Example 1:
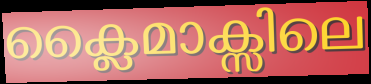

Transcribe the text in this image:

ക്ലൈമാക്സിലെ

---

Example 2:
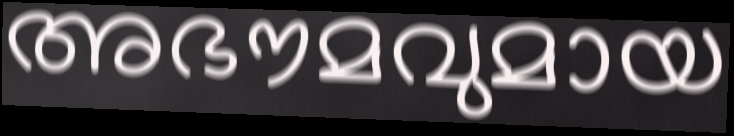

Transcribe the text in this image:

അഭൗമവുമായ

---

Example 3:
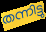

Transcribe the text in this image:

തന്നിട്ടു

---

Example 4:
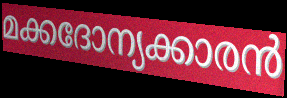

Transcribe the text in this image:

മക്കദോന്യക്കാരൻ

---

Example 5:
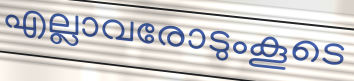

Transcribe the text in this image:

എല്ലാവരോടുംകൂടെ